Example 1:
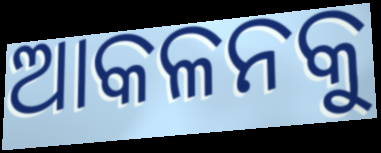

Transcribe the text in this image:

ଆକଳନକୁ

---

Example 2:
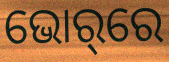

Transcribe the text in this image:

ଭୋର୍‌ରେ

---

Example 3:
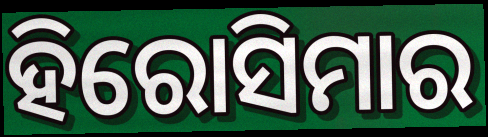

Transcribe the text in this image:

ହିରୋସିମାର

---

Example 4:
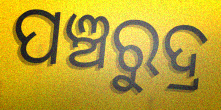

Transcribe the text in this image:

ପଞ୍ଚରୁଦ୍ର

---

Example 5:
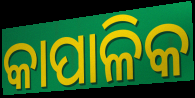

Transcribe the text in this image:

କାପାଳିକ